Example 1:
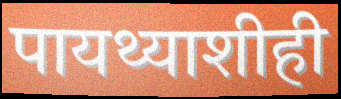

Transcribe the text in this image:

पायथ्याशीही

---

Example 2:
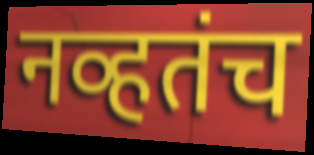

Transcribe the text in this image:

नव्हतंच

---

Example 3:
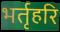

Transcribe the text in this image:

भर्तृहरि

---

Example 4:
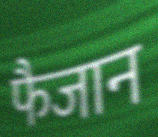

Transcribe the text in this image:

फैजान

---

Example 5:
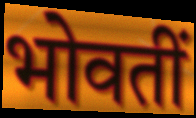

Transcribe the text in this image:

भोवतीं